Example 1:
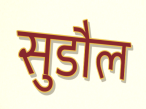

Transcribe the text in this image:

सुडौल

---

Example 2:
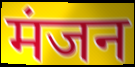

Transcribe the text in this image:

मंजन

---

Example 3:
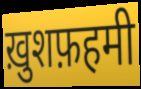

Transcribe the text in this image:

ख़ुशफ़हमी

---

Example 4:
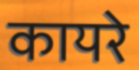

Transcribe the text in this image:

कायरे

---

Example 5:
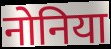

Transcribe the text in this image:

नोनिया